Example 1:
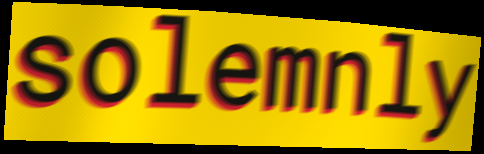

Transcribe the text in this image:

solemnly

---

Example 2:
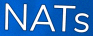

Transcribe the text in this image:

NATs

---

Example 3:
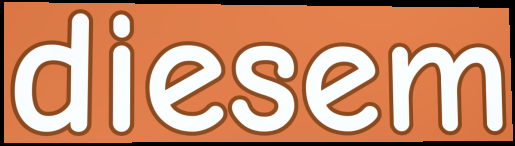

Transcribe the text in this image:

diesem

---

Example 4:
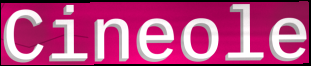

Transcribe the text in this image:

Cineole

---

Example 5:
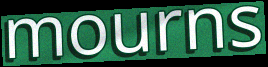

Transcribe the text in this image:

mourns